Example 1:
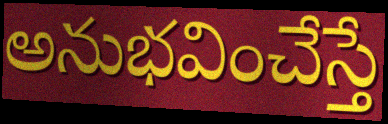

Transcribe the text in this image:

అనుభవించేస్తే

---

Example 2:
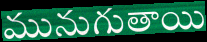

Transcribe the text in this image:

మునుగుతాయి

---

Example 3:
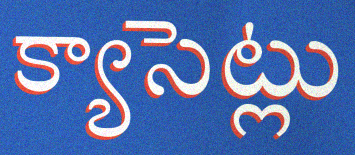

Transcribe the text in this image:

క్యాసెట్లు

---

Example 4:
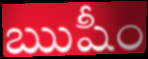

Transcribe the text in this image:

ఋషీం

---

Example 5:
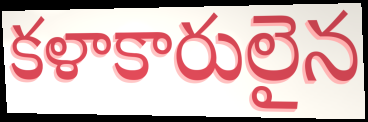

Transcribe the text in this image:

కళాకారులైన